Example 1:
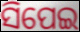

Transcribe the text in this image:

ସିପେଇ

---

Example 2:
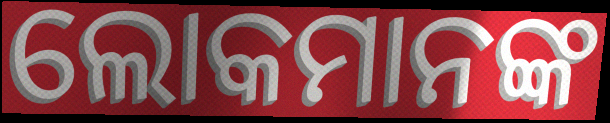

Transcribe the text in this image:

ଲୋକମାନଙ୍କ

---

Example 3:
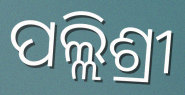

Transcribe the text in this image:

ପଲ୍ଲିଶ୍ରୀ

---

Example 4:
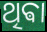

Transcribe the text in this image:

ଥିଵା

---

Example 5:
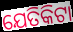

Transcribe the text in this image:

ଯେତିକିଟା